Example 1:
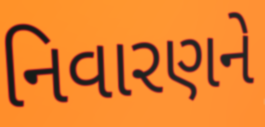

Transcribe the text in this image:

નિવારણને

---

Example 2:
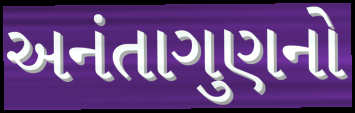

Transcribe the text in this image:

અનંતાગુણનો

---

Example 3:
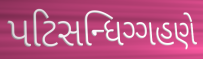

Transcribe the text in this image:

પટિસન્ધિગ્ગહણે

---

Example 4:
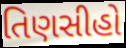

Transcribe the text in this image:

તિણસીહો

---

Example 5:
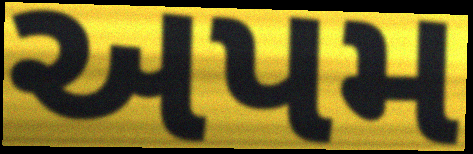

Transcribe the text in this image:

અપમ